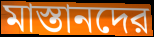
মাস্তানদের